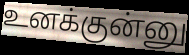
உனக்குன்னு